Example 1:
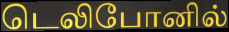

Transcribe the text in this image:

டெலிபோனில்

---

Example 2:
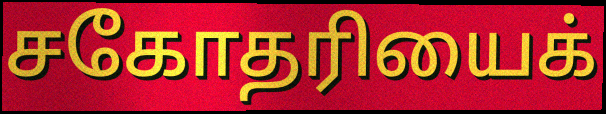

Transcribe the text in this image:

சகோதரியைக்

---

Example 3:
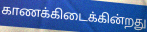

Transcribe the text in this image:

காணக்கிடைக்கின்றது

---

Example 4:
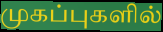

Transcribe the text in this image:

முகப்புகளில்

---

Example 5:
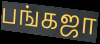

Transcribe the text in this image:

பங்கஜா